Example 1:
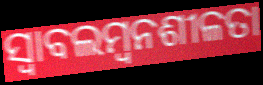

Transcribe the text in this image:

ସ୍ୱାବଲମ୍ବନଶୀଳତା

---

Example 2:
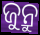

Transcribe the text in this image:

ଜୁନ୍ରୁ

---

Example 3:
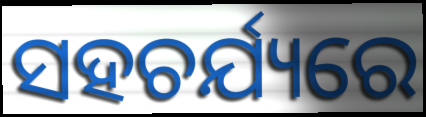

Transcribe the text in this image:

ସହଚର୍ଯ୍ୟରେ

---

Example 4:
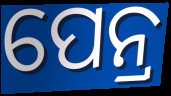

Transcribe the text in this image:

ପେନ୍ର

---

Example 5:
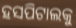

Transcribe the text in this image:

ହସପିଟାଲକୁ